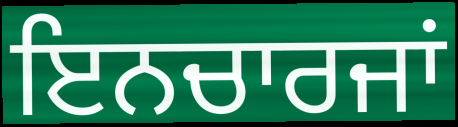
ਇਨਚਾਰਜਾਂ